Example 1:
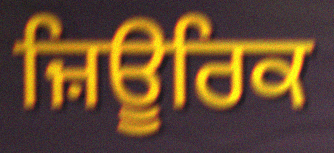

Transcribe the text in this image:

ਜ਼ਿਊਰਿਕ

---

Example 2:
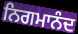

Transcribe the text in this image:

ਨਿਗਮਾਨੰਦ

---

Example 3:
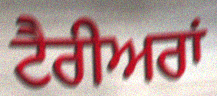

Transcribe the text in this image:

ਟੈਰੀਅਰਾਂ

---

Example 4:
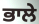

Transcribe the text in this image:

ਭਾਲੇ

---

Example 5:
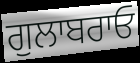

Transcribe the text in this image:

ਗੁਲਾਬਰਾਓ